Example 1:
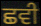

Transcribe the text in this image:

ਛਵੀ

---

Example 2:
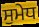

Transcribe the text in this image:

ਸੁਮੇਧ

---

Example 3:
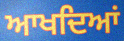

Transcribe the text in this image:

ਆਖਦਿਆਂ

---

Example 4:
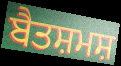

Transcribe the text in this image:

ਬੈਤਸ਼ਮਸ਼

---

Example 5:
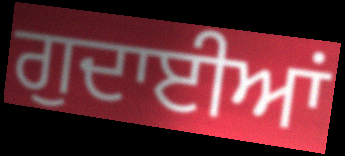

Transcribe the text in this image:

ਗੁਦਾਈਆਂ